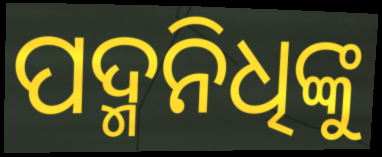
ପଦ୍ମନିଧିଙ୍କୁ